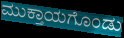
ಮುಕ್ತಾಯಗೊಂಡು